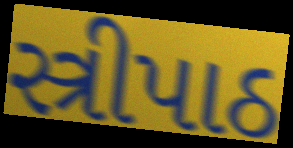
સ્ત્રીપાઠ